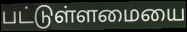
பட்டுள்ளமையை